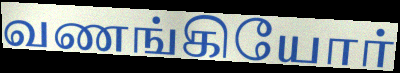
வணங்கியோர்